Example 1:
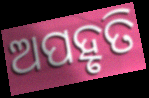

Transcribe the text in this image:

ଅପହୃତି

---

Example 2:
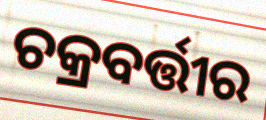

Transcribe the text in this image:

ଚକ୍ରବର୍ତ୍ତୀର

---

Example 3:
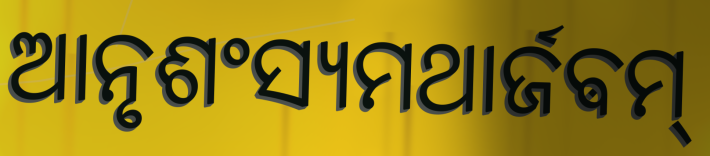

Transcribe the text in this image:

ଆନୃଶଂସ୍ୟମଥାର୍ଜଵମ୍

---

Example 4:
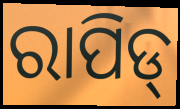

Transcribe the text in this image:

ରାପିଡ୍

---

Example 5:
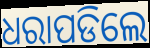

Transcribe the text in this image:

ଧରାପଡିଲେ